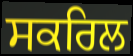
ਸਕਰਿਲ